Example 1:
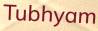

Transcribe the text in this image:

Tubhyam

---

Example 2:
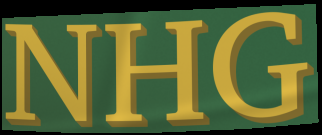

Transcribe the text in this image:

NHG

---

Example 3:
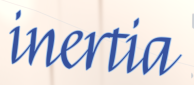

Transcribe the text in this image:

inertia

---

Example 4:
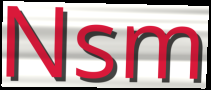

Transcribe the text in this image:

Nsm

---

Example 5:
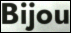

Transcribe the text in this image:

Bijou